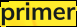
primer